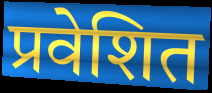
प्रवेशित